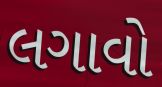
લગાવો